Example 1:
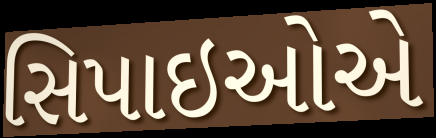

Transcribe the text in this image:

સિપાઇઓએ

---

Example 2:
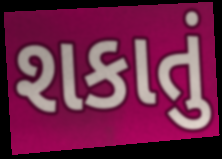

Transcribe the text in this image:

શકાતું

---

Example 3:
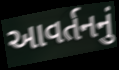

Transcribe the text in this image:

આવર્તનનું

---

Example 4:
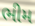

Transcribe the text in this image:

ભીમ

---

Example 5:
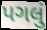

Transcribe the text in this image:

પગલું